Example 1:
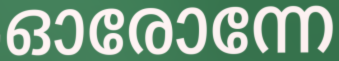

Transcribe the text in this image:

ഓരോന്നേ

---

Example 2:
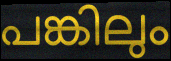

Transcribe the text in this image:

പങ്കിലും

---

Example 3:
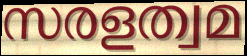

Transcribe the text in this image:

സരളത്വമ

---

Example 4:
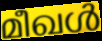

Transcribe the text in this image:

മീഖൾ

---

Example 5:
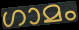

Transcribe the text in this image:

ഗാമം